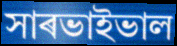
সাৰভাইভাল